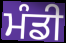
ਮੰਡੀ